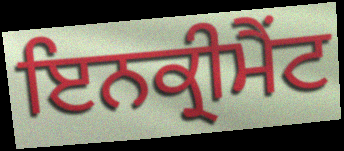
ਇਨਕ੍ਰੀਮੈਂਟ